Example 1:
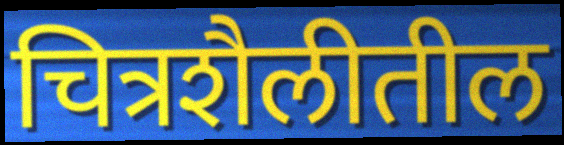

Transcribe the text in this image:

चित्रशैलीतील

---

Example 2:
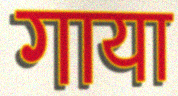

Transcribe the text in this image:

गाया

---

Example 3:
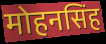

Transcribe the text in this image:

मोहनसिंह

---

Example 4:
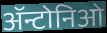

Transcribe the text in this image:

ॲन्टोनिओ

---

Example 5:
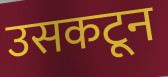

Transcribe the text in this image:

उसकटून